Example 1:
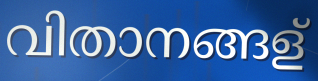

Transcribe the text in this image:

വിതാനങ്ങള്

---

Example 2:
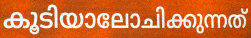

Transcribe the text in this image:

കൂടിയാലോചിക്കുന്നത്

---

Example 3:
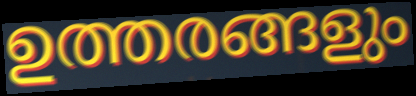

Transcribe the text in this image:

ഉത്തരങ്ങളും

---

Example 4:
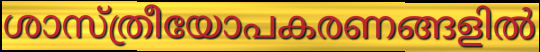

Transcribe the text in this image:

ശാസ്ത്രീയോപകരണങ്ങളിൽ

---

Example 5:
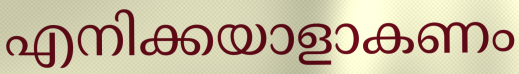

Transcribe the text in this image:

എനിക്കയാളാകണം